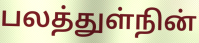
பலத்துள்நின்